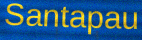
Santapau